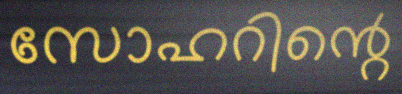
സോഹറിന്റെ